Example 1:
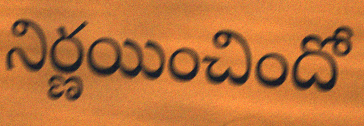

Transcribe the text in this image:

నిర్ణయించిందో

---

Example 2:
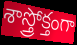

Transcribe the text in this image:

శాస్త్రోక్తంగా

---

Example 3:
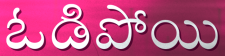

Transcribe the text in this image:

ఓడిపోయి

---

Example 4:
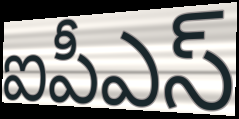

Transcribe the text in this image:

ఐపీఎస్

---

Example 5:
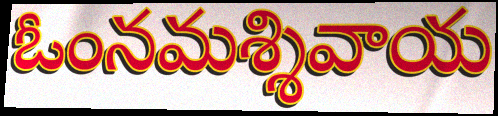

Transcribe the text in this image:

ఓంనమశ్శివాయ